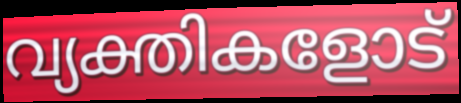
വ്യക്തികളോട്